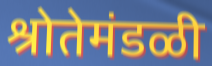
श्रोतेमंडळी